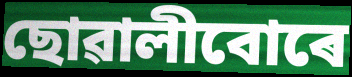
ছোৱালীবোৰে